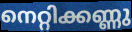
നെറ്റിക്കണ്ണു